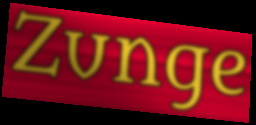
Zunge